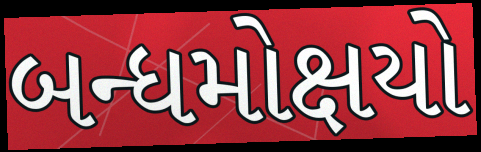
બન્ધમોક્ષયો